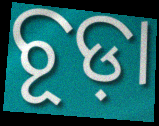
ଚୂଡ଼ା